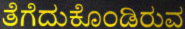
ತೆಗೆದುಕೊಂಡಿರುವ